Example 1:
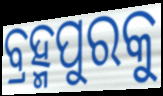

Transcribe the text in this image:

ବ୍ରହ୍ମପୁରକୁ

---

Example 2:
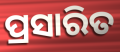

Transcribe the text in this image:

ପ୍ରସାରିତ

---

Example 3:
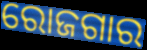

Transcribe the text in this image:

ରୋଜଗାର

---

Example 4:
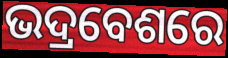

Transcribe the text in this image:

ଭଦ୍ରବେଶରେ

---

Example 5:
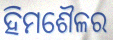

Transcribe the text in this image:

ହିମଶୈଳର